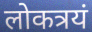
लोकत्रयं